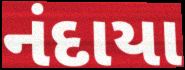
નંદાયા